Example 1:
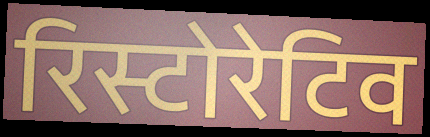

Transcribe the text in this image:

रिस्टोरेटिव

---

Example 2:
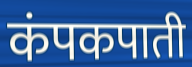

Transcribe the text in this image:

कंपकपाती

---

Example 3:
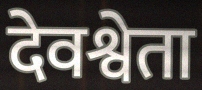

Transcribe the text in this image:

देवश्वेता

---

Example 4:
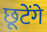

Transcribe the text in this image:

छूटेंगे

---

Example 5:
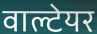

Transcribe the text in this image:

वाल्टेयर